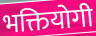
भक्तियोगी